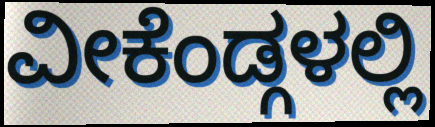
ವೀಕೆಂಡ್ಗಳಲ್ಲಿ